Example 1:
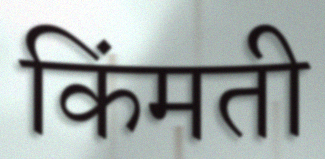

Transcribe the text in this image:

किंमती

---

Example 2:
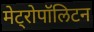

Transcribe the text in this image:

मेट्रोपॉलिटन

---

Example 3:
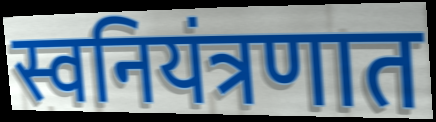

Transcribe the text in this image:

स्वनियंत्रणात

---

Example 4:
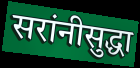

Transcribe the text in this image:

सरांनीसुद्धा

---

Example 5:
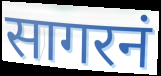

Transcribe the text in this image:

सागरनं